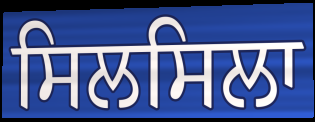
ਸਿਲਸਿਲਾ